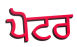
ਪੋਟਰ